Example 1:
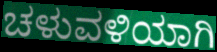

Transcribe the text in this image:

ಚಳುವಳಿಯಾಗಿ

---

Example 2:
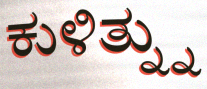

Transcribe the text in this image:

ಕುಳಿತ್ನ್ನು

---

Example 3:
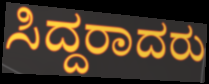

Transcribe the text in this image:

ಸಿದ್ದರಾದರು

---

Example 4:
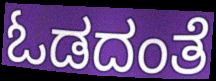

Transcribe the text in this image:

ಓಡದಂತೆ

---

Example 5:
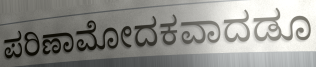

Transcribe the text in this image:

ಪರಿಣಾಮೋದಕವಾದಡೂ